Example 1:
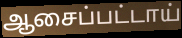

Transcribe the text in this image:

ஆசைப்பட்டாய்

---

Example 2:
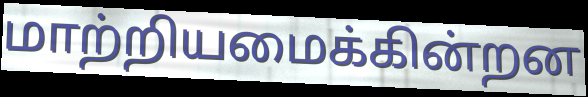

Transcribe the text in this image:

மாற்றியமைக்கின்றன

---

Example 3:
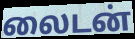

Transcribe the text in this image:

லைடன்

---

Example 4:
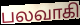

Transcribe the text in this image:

பலவாகி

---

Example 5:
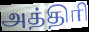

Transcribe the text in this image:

அத்திரி